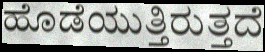
ಹೊಡೆಯುತ್ತಿರುತ್ತದೆ